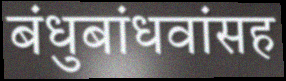
बंधुबांधवांसह